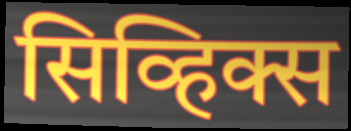
सिव्हिक्स